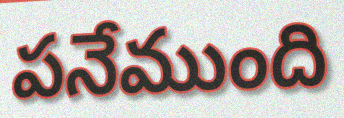
పనేముంది